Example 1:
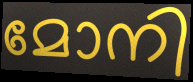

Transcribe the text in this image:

മോനി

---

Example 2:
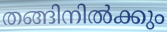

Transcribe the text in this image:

തങ്ങിനിൽക്കും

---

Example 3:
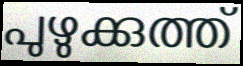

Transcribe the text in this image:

പുഴുക്കുത്ത്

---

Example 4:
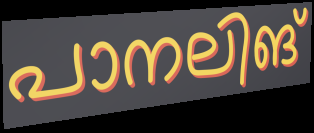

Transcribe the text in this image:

പാനലിങ്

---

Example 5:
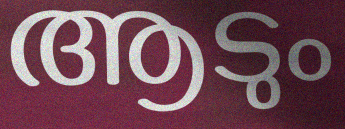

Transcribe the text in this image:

ആടും